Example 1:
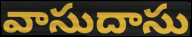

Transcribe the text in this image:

వాసుదాసు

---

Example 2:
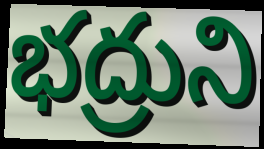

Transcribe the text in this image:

భద్రుని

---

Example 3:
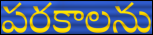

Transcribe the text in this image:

పరకాలను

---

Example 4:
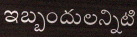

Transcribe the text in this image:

ఇబ్బందులన్నిటి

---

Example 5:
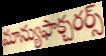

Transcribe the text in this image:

మాన్యుఫాక్చరర్స్